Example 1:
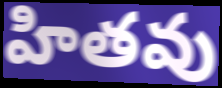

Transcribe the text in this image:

హితవు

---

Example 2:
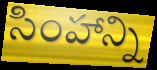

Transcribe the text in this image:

సింహాన్ని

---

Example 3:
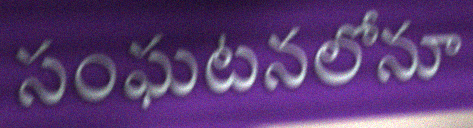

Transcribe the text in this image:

సంఘటనలోనూ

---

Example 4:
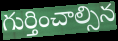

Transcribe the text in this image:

గుర్తించాల్సిన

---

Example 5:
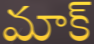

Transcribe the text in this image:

మాక్